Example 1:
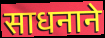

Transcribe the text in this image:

साधनाने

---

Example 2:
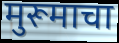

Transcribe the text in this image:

मुरूमाचा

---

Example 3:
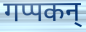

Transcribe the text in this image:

गप्पकन्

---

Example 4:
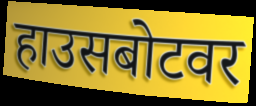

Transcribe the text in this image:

हाउसबोटवर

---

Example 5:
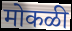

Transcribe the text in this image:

मोकळी